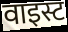
वाइस्ट